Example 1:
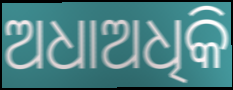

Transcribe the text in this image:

ଅଧାଅଧିକି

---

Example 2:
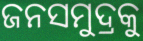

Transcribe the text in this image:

ଜନସମୁଦ୍ରକୁ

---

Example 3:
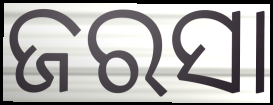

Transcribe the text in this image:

ଜରସା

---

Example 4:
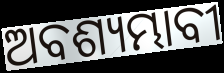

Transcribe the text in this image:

ଅବଶ୍ୟମ୍ଭାବୀ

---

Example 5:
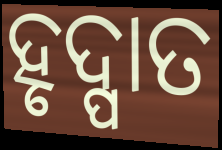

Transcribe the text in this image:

ହୃଦ୍ପାତ